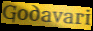
Godavari